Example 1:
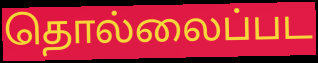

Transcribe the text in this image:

தொல்லைப்பட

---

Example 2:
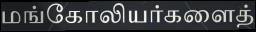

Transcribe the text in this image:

மங்கோலியர்களைத்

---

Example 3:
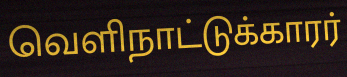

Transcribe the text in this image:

வெளிநாட்டுக்காரர்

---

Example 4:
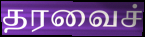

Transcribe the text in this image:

தரவைச்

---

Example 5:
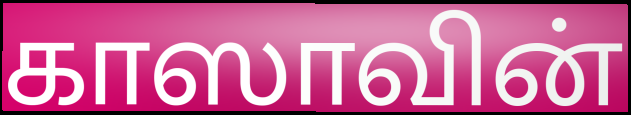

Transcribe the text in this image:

காஸாவின்